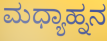
ಮಧ್ಯಾಹ್ನನ